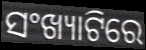
ସଂଖ୍ୟାଟିରେ